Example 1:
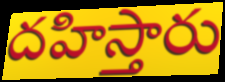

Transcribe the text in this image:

దహిస్తారు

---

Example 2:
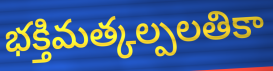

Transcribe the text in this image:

భక్తిమత్కల్పలతికా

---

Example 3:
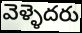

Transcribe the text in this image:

వెళ్ళెదరు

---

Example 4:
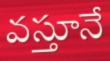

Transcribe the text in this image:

వస్తూనే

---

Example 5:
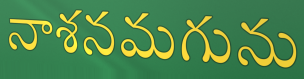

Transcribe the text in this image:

నాశనమగును